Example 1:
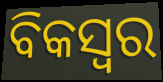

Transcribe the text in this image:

ବିକସ୍ୱର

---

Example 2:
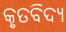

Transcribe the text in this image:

କୃତବିଦ୍ୟ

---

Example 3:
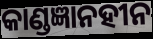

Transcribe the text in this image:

କାଣ୍ଡଜ୍ଞାନହୀନ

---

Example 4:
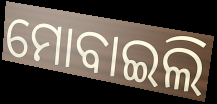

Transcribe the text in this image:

ମୋବାଇଲି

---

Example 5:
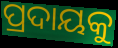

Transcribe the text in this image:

ପ୍ରଦାୟକୁ